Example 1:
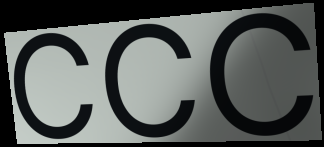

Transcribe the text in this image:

CCC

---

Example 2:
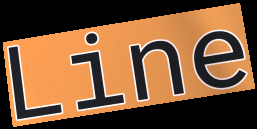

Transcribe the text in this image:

Line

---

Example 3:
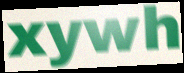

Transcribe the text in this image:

xywh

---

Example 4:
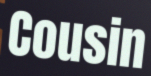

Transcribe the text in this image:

Cousin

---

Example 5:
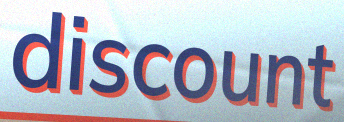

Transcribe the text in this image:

discount